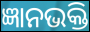
ଜ୍ଞାନଭକ୍ତି